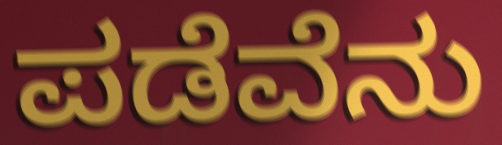
ಪಡೆವೆನು